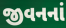
જીવનનાં